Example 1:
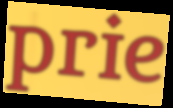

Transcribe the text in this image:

prie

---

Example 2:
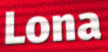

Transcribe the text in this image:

Lona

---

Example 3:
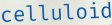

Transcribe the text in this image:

celluloid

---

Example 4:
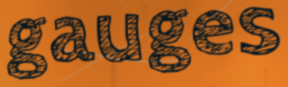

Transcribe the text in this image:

gauges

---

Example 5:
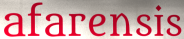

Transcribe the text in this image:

afarensis